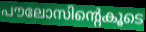
പൗലോസിന്റെകൂടെ